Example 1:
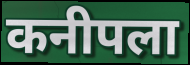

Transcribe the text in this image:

कनीपला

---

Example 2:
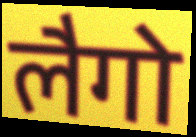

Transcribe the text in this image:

लैगो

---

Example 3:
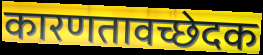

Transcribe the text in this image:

कारणतावच्छेदक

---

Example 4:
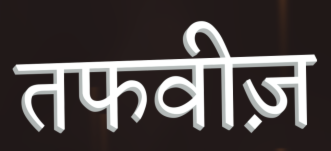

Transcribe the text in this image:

तफवीज़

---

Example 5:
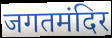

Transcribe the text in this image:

जगतमंदिर